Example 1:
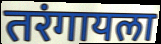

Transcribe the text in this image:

तरंगायला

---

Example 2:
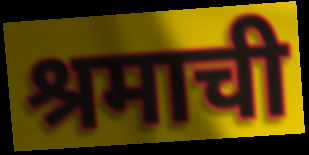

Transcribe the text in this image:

श्रमाची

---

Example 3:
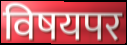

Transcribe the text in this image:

विषयपर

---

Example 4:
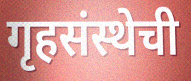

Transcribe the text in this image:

गृहसंस्थेची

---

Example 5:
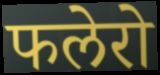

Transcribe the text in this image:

फलेरो